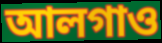
আলগাও